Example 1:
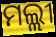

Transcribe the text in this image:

ମଲ୍ଲୀ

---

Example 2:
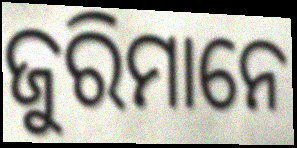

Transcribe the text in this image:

ଜୁରିମାନେ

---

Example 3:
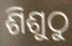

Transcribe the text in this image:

ଶିଶୁଠୁ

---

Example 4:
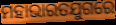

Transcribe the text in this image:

ମହାଭାରତଯୁଗରେ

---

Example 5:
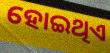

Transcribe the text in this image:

ହୋଇଥିଏ